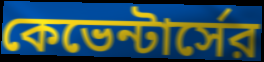
কেভেন্টার্সের